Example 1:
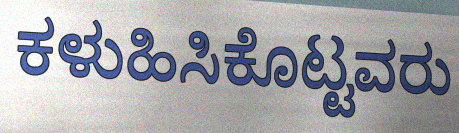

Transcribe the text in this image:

ಕಳುಹಿಸಿಕೊಟ್ಟವರು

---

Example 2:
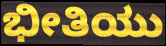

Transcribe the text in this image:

ಭೀತಿಯು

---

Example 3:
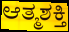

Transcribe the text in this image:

ಆತ್ಮಶಕ್ತಿ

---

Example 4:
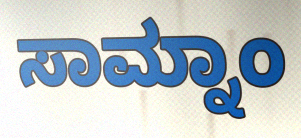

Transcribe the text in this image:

ಸಾಮ್ನಾಂ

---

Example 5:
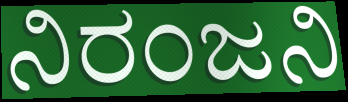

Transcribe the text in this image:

ನಿರಂಜನಿ